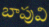
బాపువి